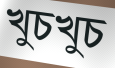
খুচখুচ